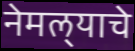
नेमल्याचे